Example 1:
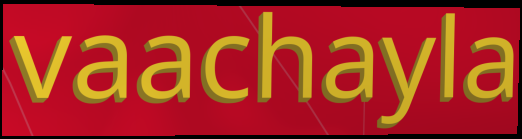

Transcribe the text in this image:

vaachayla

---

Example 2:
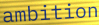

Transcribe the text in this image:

ambition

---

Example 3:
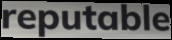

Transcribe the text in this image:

reputable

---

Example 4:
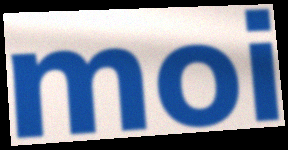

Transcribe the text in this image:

moi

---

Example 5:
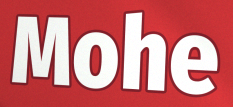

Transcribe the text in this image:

Mohe